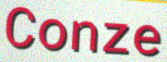
Conze